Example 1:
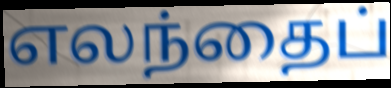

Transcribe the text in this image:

எலந்தைப்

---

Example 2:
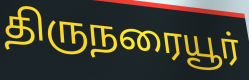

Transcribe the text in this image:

திருநரையூர்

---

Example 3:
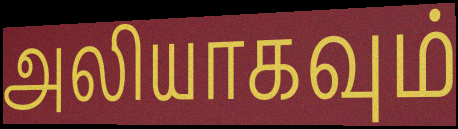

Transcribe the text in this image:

அலியாகவும்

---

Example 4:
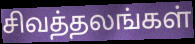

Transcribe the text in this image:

சிவத்தலங்கள்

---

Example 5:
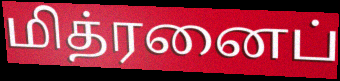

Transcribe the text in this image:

மித்ரனைப்